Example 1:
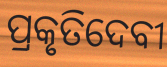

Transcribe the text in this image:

ପ୍ରକୃତିଦେବୀ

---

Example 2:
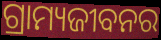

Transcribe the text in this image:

ଗ୍ରାମ୍ୟଜୀବନର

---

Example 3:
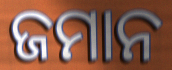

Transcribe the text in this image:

ଜମାନ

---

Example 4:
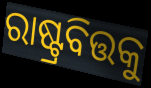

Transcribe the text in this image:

ରାଷ୍ଟ୍ରବିତ୍ତକୁ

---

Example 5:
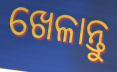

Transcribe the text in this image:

ଖେଳାନ୍ତୁ